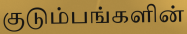
குடும்பங்களின்